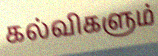
கல்விகளும்